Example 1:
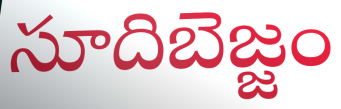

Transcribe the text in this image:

సూదిబెజ్జం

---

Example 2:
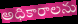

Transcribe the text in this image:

అధికారాలను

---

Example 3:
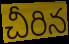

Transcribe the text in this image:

చీరిన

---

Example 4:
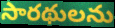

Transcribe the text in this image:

సారథులను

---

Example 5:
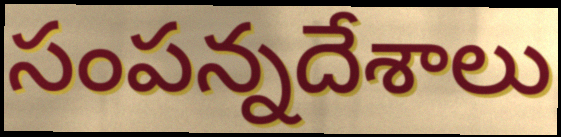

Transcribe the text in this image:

సంపన్నదేశాలు